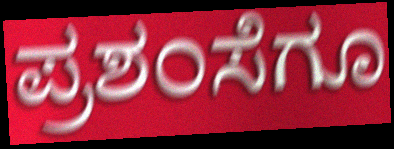
ಪ್ರಶಂಸೆಗೂ